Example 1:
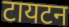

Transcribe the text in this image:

टायटन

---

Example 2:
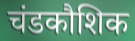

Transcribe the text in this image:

चंडकौशिक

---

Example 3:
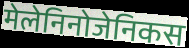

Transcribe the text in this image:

मेलेनिनोजेनिकस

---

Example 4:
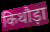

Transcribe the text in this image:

किथौड़ा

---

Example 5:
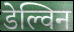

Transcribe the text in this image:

डेल्विन